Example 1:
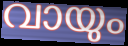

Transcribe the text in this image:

വായും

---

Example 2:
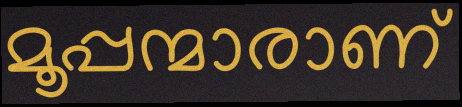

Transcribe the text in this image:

മൂപ്പന്മാരാണ്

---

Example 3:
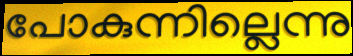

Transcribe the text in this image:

പോകുന്നില്ലെന്നു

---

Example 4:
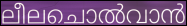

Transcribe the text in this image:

ലീലചൊൽവാൻ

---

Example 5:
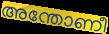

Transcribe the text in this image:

അന്തോണീ